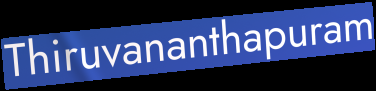
Thiruvananthapuram